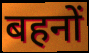
बहनों